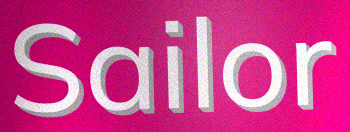
Sailor